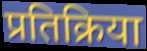
प्रतिक्रिया